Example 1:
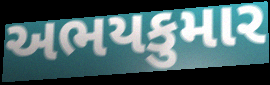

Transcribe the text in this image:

અભયકુમાર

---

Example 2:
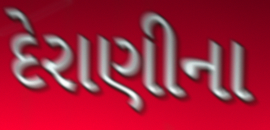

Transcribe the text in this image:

દેરાણીના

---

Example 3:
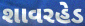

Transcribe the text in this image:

શાવરહેડ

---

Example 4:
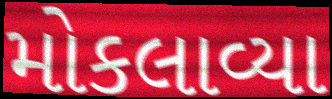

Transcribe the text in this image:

મોકલાવ્યા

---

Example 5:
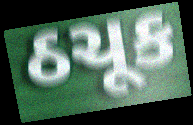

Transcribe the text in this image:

ઠચૂક